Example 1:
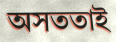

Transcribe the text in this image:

অসততাই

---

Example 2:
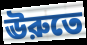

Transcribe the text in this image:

ঊরুতে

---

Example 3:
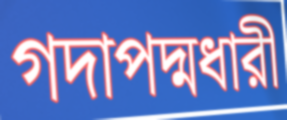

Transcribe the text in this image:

গদাপদ্মধারী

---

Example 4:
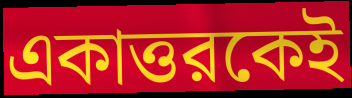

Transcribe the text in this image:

একাত্তরকেই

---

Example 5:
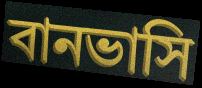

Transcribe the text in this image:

বানভাসি